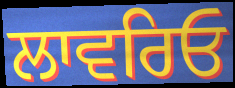
ਲਾਵਰਿਓ